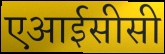
एआईसीसी